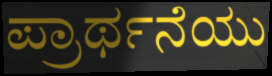
ಪ್ರಾರ್ಥನೆಯು